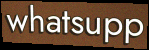
whatsupp